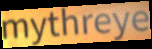
mythreye